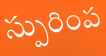
స్పురింప